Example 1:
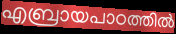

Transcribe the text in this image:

എബ്രായപാഠത്തിൽ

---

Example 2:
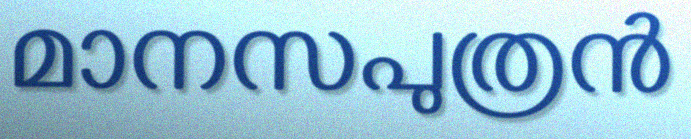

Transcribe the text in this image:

മാനസപുത്രൻ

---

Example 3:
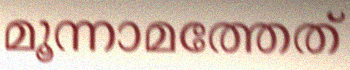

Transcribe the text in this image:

മൂന്നാമത്തേത്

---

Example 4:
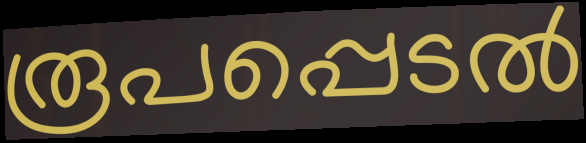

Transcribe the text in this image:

രൂപപ്പെടൽ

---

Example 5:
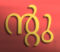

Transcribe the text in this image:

ന്റു